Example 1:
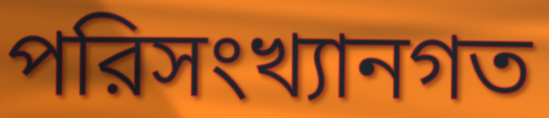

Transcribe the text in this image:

পরিসংখ্যানগত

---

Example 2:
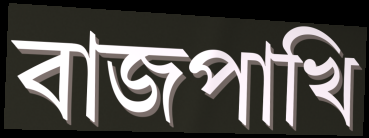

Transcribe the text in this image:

বাজপাখি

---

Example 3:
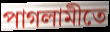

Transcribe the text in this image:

পাগলামীতে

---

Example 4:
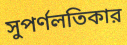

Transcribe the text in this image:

সুপর্ণলতিকার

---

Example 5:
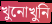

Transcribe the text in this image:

খুনোখুনি